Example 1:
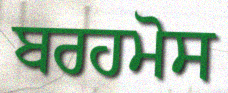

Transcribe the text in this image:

ਬਰਹਮੋਸ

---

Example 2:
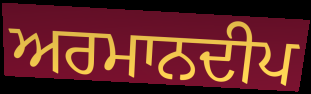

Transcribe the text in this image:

ਅਰਮਾਨਦੀਪ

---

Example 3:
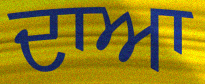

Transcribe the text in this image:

ਦਾਆ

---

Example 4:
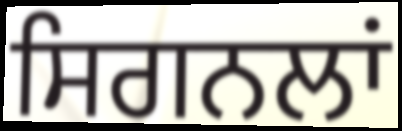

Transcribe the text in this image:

ਸਿਗਨਲਾਂ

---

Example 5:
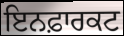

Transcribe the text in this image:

ਇਨਫ਼ਾਰਕਟ